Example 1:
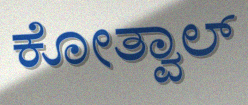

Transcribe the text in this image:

ಕೋತ್ವಾಲ್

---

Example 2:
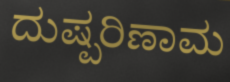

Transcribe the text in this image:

ದುಷ್ಪರಿಣಾಮ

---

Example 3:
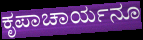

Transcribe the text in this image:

ಕೃಪಾಚಾರ್ಯನೂ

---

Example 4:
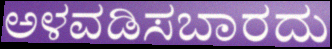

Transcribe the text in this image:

ಅಳವಡಿಸಬಾರದು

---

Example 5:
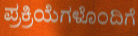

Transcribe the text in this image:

ಪ್ರಕ್ರಿಯೆಗಳೊಂದಿಗೆ